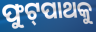
ଫୁଟ୍‌ପାଥକୁ